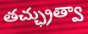
తచ్ఛ్రుత్వా